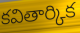
కవితార్కిక